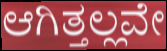
ಆಗಿತ್ತಲ್ಲವೇ